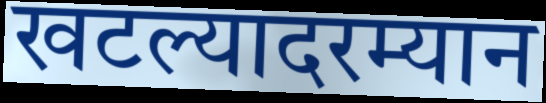
खटल्यादरम्यान